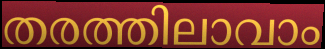
തരത്തിലാവാം